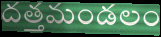
దత్తమండలం